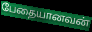
பேதையானவன்